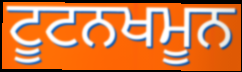
ਟੂਟਨਖਮੂਨ